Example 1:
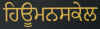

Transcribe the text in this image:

ਹਿਊਮਨਸਕੇਲ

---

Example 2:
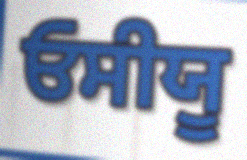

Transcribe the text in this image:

ਓਸੀਯੂ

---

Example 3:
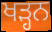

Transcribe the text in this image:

ਖੜ੍ਹਨ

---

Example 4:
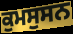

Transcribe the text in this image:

ਕੁਮਸੁਸਨ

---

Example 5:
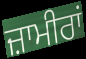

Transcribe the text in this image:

ਜ਼ਾਮੀਰਾਂ